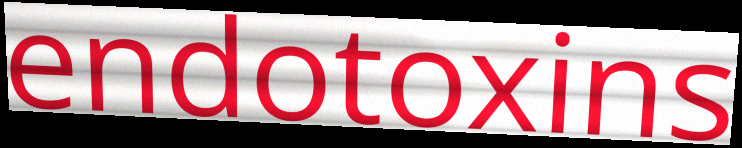
endotoxins